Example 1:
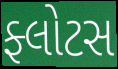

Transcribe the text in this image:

ફ્લોટસ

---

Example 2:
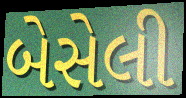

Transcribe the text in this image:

બેસેલી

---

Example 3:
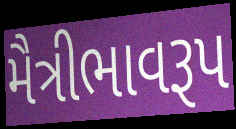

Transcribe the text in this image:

મૈત્રીભાવરૂપ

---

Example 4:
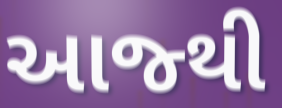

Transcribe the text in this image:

આજ્થી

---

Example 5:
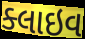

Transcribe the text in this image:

ક્લાઇવ